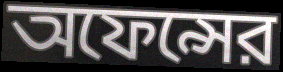
অফেন্সের